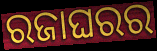
ରଜାଘରର